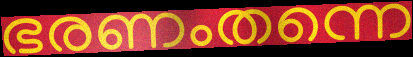
ഭരണംതന്നെ